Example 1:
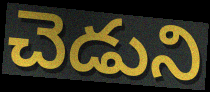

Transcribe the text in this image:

చెడుని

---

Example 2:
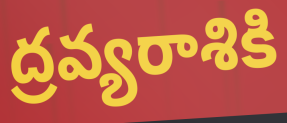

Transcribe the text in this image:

ద్రవ్యరాశికి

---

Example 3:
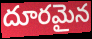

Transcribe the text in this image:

దూరమైన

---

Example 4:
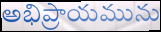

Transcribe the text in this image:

అభిప్రాయమును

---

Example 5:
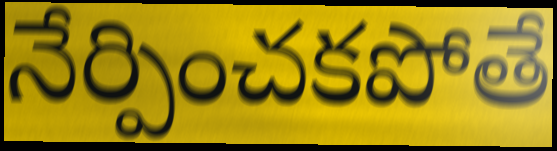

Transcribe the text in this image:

నేర్పించకపోతే